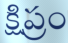
క్షిప్రం